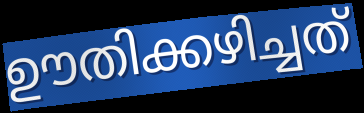
ഊതിക്കഴിച്ചത്